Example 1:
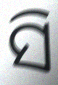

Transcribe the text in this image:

ସି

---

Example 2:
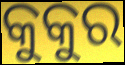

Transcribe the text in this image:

କୁକୁର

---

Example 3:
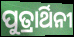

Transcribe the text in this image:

ପୁତ୍ରାର୍ଥିନୀ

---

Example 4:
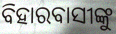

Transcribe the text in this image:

ବିହାରବାସୀଙ୍କୁ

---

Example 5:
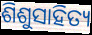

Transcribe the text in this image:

ଶିଶୁସାହିତ୍ୟ